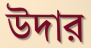
উদার